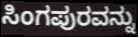
ಸಿಂಗಪುರವನ್ನು